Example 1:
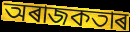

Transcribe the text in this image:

অৰাজকতাৰ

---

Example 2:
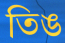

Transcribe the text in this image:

তিঙ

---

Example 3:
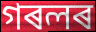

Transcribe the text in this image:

গৰলৰ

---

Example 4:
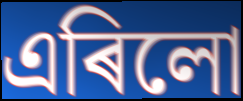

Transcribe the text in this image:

এৰিলো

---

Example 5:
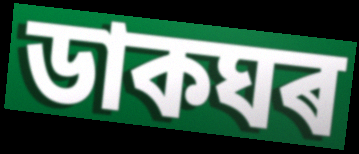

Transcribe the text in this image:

ডাকঘৰ